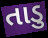
તાડુ